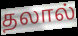
தலால்